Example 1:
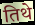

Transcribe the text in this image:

तिथे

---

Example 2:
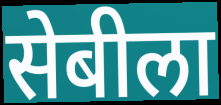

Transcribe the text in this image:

सेबीला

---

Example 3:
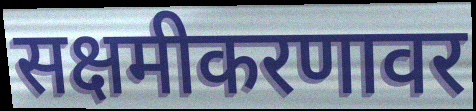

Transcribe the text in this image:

सक्षमीकरणावर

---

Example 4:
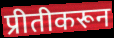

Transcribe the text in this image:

प्रीतीकरून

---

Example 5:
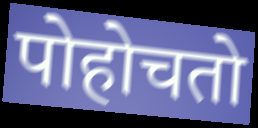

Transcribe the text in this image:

पोहोचतो